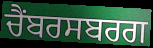
ਚੈਂਬਰਸਬਰਗ